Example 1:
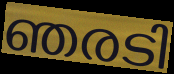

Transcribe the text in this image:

ഞരടി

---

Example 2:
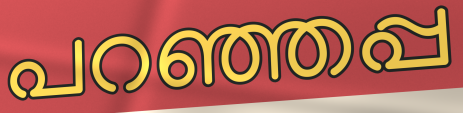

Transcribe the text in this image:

പറഞ്ഞപ്പ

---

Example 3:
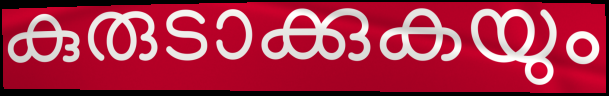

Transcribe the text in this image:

കുരുടാക്കുകയും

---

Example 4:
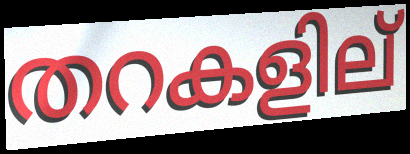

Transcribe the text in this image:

തറകളില്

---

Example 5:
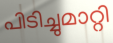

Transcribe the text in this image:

പിടിച്ചുമാറ്റി